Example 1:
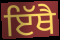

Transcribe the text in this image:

ਇੱਥੈ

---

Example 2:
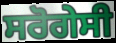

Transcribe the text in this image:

ਸਰੋਗੇਸੀ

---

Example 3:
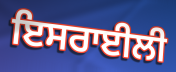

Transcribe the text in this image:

ਇਸਰਾਈਲੀ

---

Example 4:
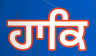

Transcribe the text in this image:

ਹਾਕਿ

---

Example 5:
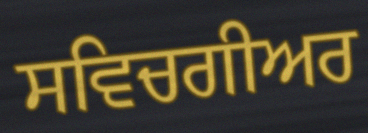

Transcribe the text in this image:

ਸਵਿਚਗੀਅਰ